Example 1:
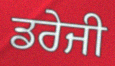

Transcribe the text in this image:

ਡਰੇਜੀ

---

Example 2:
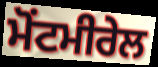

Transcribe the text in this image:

ਮੋਂਟਮੀਰੇਲ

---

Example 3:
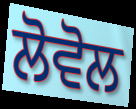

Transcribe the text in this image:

ਲੋਵੋਲ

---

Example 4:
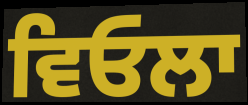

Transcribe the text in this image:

ਵਿਓਲਾ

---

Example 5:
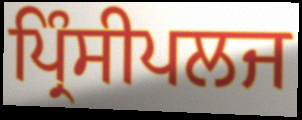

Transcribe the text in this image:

ਪ੍ਰਿੰਸੀਪਲਜ